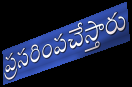
ప్రసరింపచేస్తారు